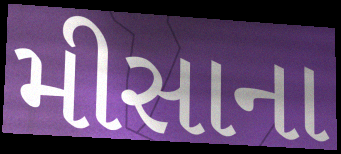
મીસાના